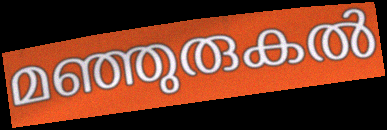
മഞ്ഞുരുകൽ